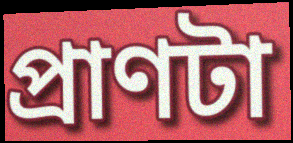
প্রাণটা